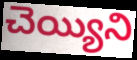
చెయ్యిని